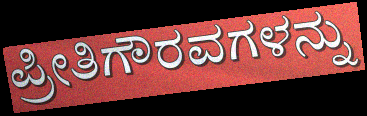
ಪ್ರೀತಿಗೌರವಗಳನ್ನು